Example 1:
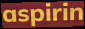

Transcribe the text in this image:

aspirin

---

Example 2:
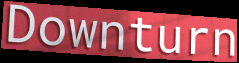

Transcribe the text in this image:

Downturn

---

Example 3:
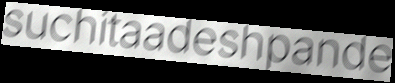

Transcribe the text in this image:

suchitaadeshpande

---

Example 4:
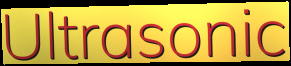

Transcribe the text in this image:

Ultrasonic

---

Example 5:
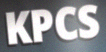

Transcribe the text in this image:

KPCS